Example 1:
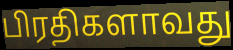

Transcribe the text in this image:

பிரதிகளாவது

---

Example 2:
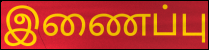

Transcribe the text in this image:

இணைப்பு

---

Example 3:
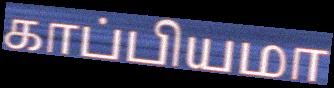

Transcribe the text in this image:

காப்பியமா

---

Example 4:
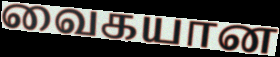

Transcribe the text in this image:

வைகயான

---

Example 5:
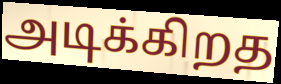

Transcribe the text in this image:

அடிக்கிறத